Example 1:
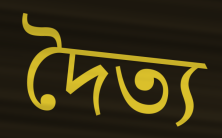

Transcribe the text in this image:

দৈত্য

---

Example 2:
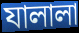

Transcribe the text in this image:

যালালা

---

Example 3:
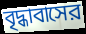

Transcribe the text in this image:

বৃদ্ধাবাসের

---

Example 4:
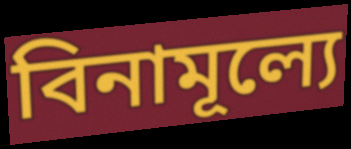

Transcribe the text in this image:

বিনামূল্যে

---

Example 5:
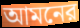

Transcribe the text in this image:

আমনের